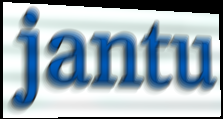
jantu